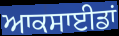
ਆਕਸਾਈਡਾਂ